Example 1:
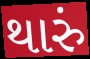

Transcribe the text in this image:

થારું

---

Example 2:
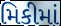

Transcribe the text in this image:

મિકીમાં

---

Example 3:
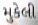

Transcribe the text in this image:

મુકેલી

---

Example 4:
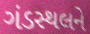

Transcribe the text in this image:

ગંડસ્થલને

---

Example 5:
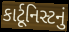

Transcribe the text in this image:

કાર્ટૂનિસ્ટનું